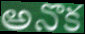
అనొక